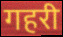
गहरी